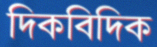
দিকবিদিক